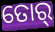
ତୋର୍